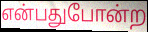
என்பதுபோன்ற